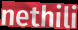
nethili